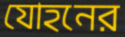
যোহনের